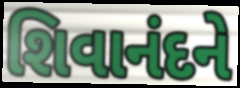
શિવાનંદને